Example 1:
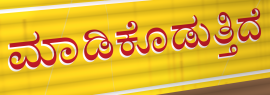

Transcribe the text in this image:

ಮಾಡಿಕೊಡುತ್ತಿದೆ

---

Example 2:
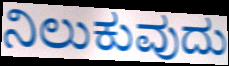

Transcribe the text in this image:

ನಿಲುಕುವುದು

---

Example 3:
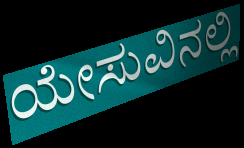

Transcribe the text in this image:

ಯೇಸುವಿನಲ್ಲಿ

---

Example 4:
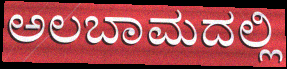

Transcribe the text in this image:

ಅಲಬಾಮದಲ್ಲಿ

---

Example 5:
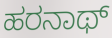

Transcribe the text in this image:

ಹರನಾಥ್